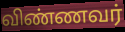
விண்ணவர்